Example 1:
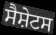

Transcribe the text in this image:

ਸੈਸ਼ੇਟਸ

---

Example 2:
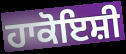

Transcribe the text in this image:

ਹਾਕੋਇਸ਼ੀ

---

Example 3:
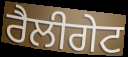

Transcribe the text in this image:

ਰੈਲੀਗੇਟ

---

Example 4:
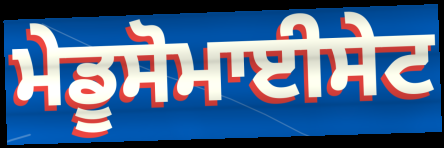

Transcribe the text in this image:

ਮੇਡੂਸੋਮਾਈਸੇਟ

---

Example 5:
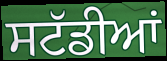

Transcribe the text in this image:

ਸਟੱਡੀਆਂ